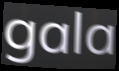
gala